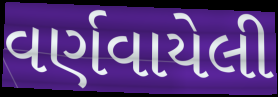
વર્ણવાયેલી